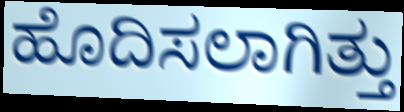
ಹೊದಿಸಲಾಗಿತ್ತು